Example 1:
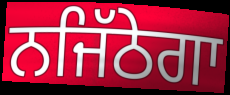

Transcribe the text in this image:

ਨਜਿੱਠੇਗਾ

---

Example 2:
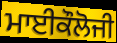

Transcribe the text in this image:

ਮਾਈਕੌਲੋਜੀ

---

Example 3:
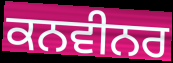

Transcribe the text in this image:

ਕਨਵੀਨਰ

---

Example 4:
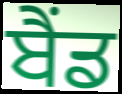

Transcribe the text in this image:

ਬੈੰਡ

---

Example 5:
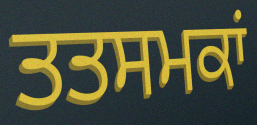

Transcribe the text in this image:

ਤਤਸਮਕਾਂ